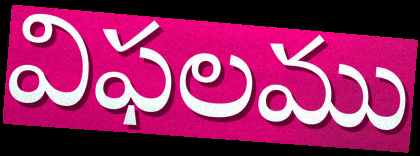
విఫలము